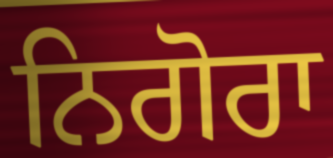
ਨਿਗੋਰਾ